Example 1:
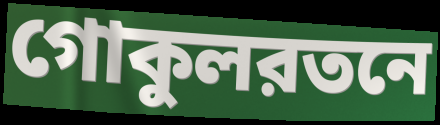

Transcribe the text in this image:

গোকুলরতনে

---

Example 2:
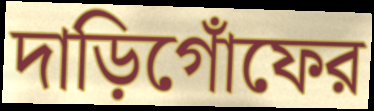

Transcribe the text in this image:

দাড়িগোঁফের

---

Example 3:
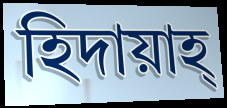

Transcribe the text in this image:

হিদায়াহ্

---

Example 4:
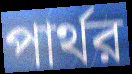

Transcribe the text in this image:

পার্থর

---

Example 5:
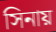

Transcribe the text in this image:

সিনায়